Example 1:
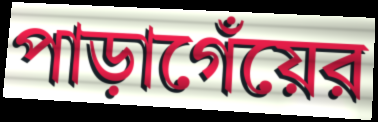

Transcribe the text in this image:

পাড়াগেঁয়ের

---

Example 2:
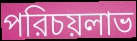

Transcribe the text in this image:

পরিচয়লাভ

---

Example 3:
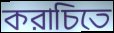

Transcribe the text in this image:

করাচিতে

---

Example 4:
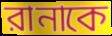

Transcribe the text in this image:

রানাকে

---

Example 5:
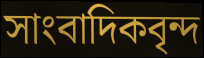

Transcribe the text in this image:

সাংবাদিকবৃন্দ